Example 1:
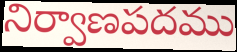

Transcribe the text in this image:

నిర్వాణపదము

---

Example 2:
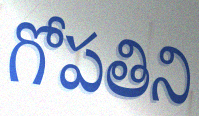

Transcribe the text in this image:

గోపతిని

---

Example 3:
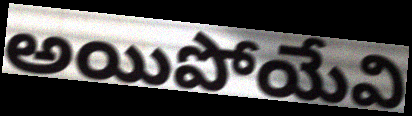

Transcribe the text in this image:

అయిపోయేవి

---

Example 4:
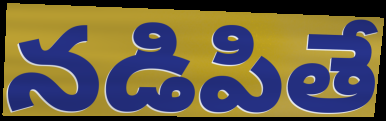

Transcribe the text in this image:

నడిపితే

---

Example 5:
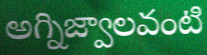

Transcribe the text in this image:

అగ్నిజ్వాలవంటి